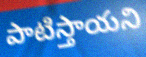
పాటిస్తాయని